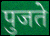
पुजते